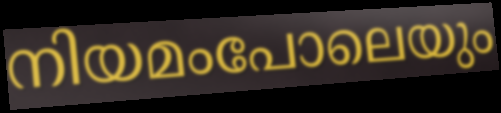
നിയമംപോലെയും